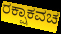
ರಕ್ಷಾಕವಚ